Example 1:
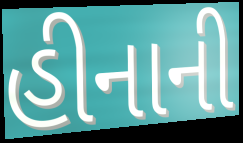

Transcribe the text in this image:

હીનાની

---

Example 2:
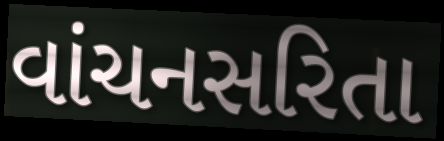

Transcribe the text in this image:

વાંચનસરિતા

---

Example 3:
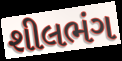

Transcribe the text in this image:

શીલભંગ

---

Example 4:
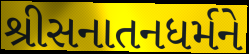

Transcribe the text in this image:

શ્રીસનાતનધર્મને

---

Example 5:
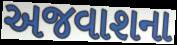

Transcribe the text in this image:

અજવાશના